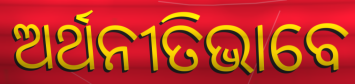
ଅର୍ଥନୀତିଭାବେ